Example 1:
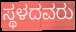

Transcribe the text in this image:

ಸ್ಥಳದವರು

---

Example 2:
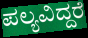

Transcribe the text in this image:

ಪಲ್ಯವಿದ್ದರೆ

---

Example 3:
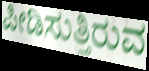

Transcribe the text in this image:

ಪೀಡಿಸುತ್ತಿರುವ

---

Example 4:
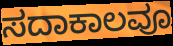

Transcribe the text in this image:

ಸದಾಕಾಲವೂ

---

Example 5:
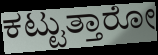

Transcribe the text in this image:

ಕಟ್ಟುತ್ತಾರೋ